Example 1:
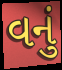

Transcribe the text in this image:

વનું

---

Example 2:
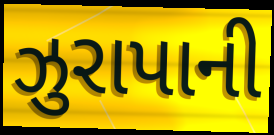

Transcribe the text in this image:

ઝુરાપાની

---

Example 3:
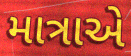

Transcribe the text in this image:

માત્રાએ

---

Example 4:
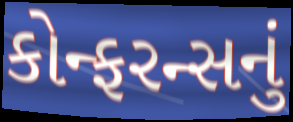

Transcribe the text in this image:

કોન્ફરન્સનું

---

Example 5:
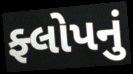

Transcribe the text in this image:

ફ્લોપનું